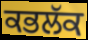
ਕਭਲੱਕ